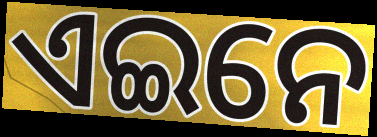
ଏଇନେ